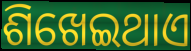
ଶିଖେଇଥାଏ